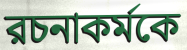
রচনাকর্মকে